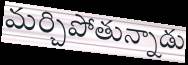
మర్చిపోతున్నాడు